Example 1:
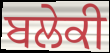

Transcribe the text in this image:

ਬਲੇਕੀ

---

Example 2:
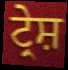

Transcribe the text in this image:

ਟ੍ਰੇਸ਼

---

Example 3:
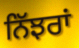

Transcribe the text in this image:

ਨਿੱਝਰਾਂ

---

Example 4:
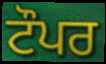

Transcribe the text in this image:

ਟੌਪਰ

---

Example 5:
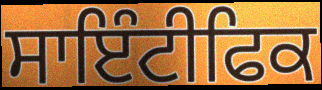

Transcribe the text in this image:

ਸਾਇੰਟੀਫਿਕ